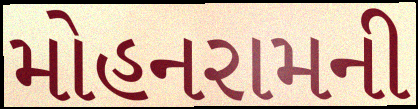
મોહનરામની